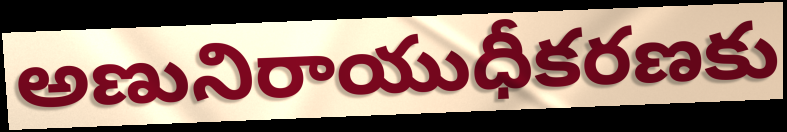
అణునిరాయుధీకరణకు